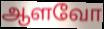
ஆளவோ